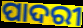
ପାଦରୀ